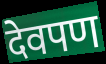
देवपण